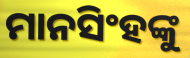
ମାନସିଂହଙ୍କୁ